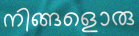
നിങ്ങളൊരു